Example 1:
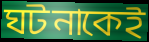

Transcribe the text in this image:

ঘটনাকেই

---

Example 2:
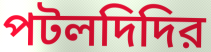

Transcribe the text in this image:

পটলদিদির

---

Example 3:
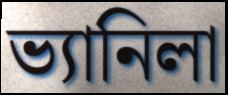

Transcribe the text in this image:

ভ্যানিলা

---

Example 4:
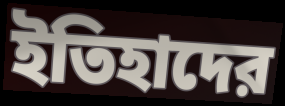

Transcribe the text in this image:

ইতিহাদের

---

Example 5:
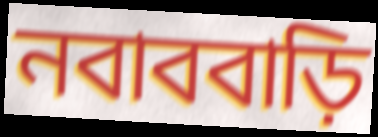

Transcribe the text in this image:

নবাববাড়ি